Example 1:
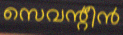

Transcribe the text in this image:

സെവന്റീൻ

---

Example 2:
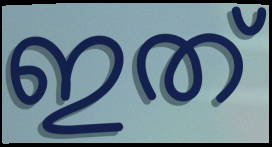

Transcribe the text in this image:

ഇത്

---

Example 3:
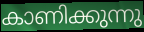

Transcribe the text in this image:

കാണിക്കുന്നു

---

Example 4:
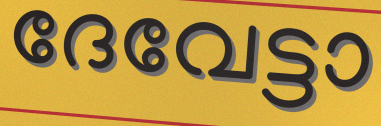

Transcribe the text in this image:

ദേവേട്ടാ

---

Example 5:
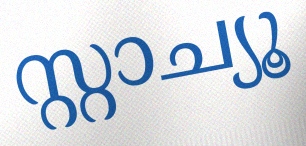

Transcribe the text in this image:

സ്റ്റാച്യൂ